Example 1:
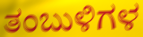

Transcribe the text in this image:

ತಂಬುಳಿಗಳ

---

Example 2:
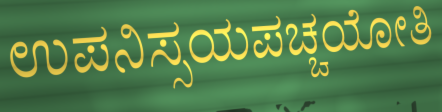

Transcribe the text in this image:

ಉಪನಿಸ್ಸಯಪಚ್ಚಯೋತಿ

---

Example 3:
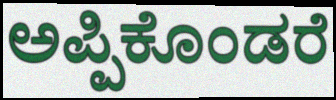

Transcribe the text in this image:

ಅಪ್ಪಿಕೊಂಡರೆ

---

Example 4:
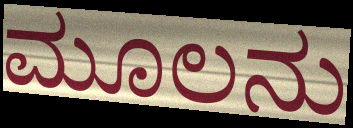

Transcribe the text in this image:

ಮೂಲನು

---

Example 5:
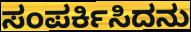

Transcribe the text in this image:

ಸಂಪರ್ಕಿಸಿದನು